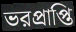
ভরপ্রাপ্তি